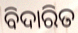
ବିଦାରିତ